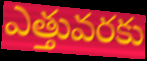
ఎత్తువరకు